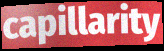
capillarity